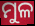
ମୁଳ